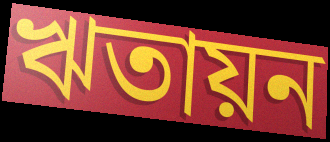
ঋতায়ন